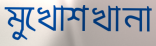
মুখোশখানা